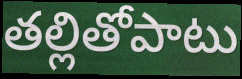
తల్లితోపాటు